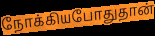
நோக்கியபோதுதான்